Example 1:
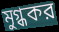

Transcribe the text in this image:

মুগ্ধকর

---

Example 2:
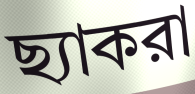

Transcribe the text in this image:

ছ্যাকরা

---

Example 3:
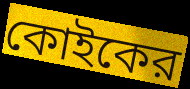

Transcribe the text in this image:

কোইকের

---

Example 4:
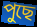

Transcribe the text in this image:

পুছে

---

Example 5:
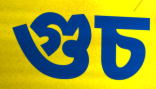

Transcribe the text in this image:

গুচ